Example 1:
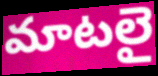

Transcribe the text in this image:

మాటలై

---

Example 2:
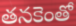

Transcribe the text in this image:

తనకెంతో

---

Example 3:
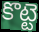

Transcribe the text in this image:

కొట్టె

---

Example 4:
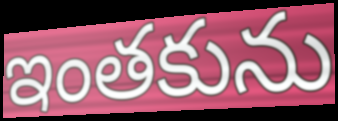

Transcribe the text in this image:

ఇంతకును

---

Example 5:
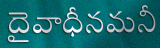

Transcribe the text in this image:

దైవాధీనమనీ